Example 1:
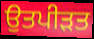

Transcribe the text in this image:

ਉਤਪੀੜਤ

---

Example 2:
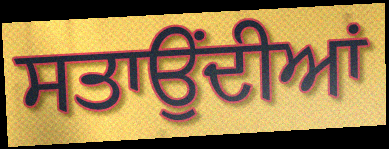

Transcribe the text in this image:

ਸਤਾਉਂਦੀਆਂ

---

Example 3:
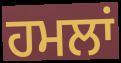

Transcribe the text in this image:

ਹਮਲਾਂ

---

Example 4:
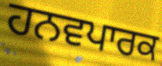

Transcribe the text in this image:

ਹਨਵਪਾਰਕ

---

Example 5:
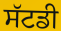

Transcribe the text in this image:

ਸੱਟਡੀ